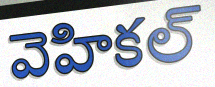
వెహికల్